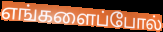
எங்களைப்போல்